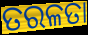
ତରଳତା